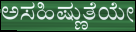
ಅಸಹಿಷ್ಣುತೆಯೇ